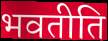
भवतीति